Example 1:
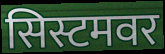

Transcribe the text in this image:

सिस्टमवर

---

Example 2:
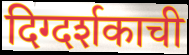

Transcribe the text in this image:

दिग्दर्शकाची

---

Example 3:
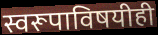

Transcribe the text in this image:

स्वरूपाविषयीही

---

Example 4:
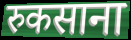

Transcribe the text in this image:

रुकसाना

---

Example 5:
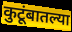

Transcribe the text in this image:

कुटूंबातल्या